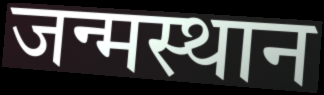
जन्मस्थान